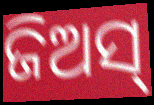
ଜିଅସ୍